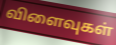
விளைவுகள்